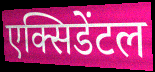
एक्सिडेंटल